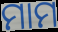
ମାମ